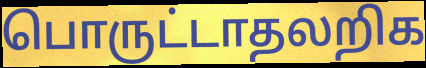
பொருட்டாதலறிக